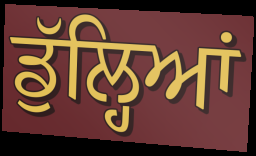
ਡੁੱਲ੍ਹਿਆਂ